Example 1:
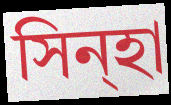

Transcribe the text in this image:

সিন্হা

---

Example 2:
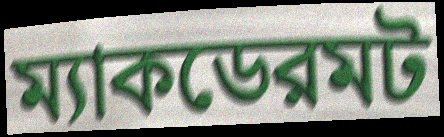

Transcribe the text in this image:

ম্যাকডেরমট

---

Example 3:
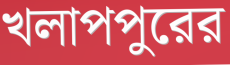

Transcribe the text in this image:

খলাপপুরের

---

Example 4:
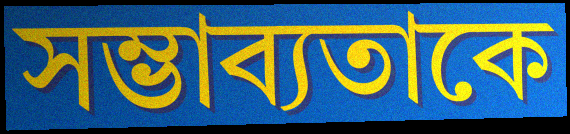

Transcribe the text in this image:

সম্ভাব্যতাকে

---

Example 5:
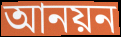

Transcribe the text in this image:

আনয়ন